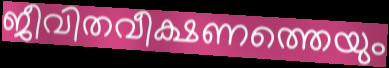
ജീവിതവീക്ഷണത്തെയും